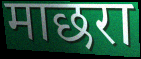
माछरा